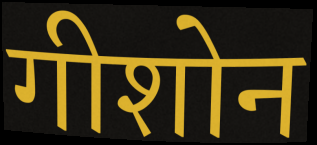
गीशोन